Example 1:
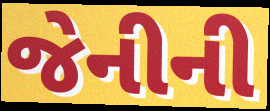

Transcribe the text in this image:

જેનીની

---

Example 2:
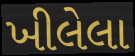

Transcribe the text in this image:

ખીલેલા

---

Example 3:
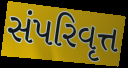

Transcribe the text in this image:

સંપરિવૃત્ત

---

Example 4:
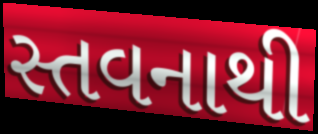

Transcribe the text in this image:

સ્તવનાથી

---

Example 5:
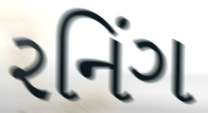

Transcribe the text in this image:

રનિંગ